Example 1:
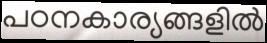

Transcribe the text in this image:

പഠനകാര്യങ്ങളിൽ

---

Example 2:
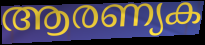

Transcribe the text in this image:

ആരണ്യക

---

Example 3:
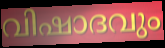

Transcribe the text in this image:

വിഷാദവും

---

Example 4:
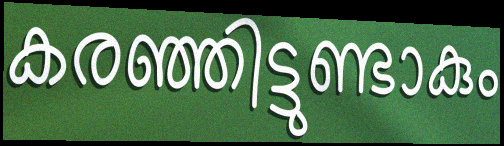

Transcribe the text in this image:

കരഞ്ഞിട്ടുണ്ടാകും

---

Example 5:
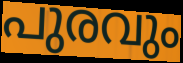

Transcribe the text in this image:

പുരവും